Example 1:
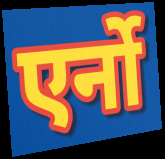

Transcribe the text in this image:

एर्नो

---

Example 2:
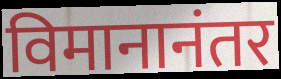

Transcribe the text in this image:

विमानानंतर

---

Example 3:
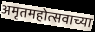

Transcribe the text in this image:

अमृतमहोत्सवाच्या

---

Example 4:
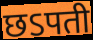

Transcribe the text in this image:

छऽपती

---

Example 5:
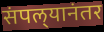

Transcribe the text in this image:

संपल्यानंतर